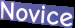
Novice